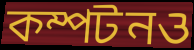
কম্পটনও